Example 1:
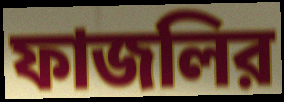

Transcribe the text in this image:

ফাজলির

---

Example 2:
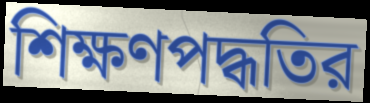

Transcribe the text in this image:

শিক্ষণপদ্ধতির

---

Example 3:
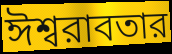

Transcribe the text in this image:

ঈশ্বরাবতার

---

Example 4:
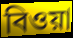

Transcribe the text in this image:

বিওয়া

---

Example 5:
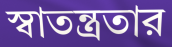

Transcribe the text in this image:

স্বাতন্ত্রতার